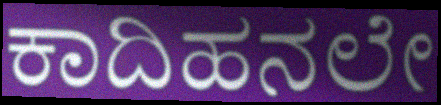
ಕಾದಿಹನಲೇ